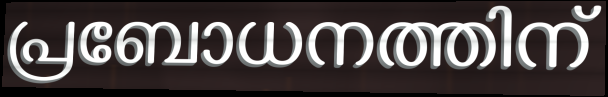
പ്രബോധനത്തിന്